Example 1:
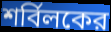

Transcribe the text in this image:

শর্বিলকের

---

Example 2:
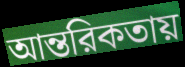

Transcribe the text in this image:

আন্তরিকতায়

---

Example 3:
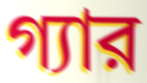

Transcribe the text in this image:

গ্যার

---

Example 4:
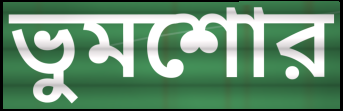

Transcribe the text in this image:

ভুমশোর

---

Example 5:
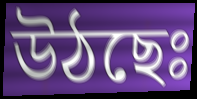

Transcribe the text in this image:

উঠছেঃ